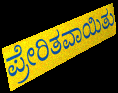
ಪ್ರೇರಿತವಾಯಿತು